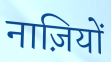
नाज़ियों